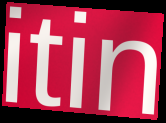
itin